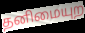
தனிமையுற